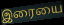
இரையை